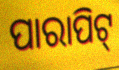
ପାରାପିଟ୍